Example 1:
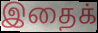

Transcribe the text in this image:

இதைக்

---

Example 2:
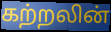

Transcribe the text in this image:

கற்றலின்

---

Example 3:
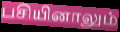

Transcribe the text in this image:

பசியினாலும்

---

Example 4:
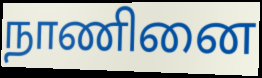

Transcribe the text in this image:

நாணினை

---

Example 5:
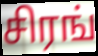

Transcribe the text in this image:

சிரங்